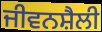
ਜੀਵਨਸ਼ੈਲੀ